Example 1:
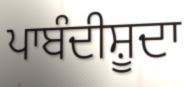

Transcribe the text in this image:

ਪਾਬੰਦੀਸ਼ੂਦਾ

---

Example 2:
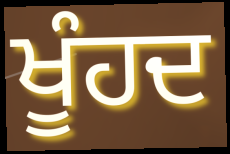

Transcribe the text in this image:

ਖੂੰਹਦ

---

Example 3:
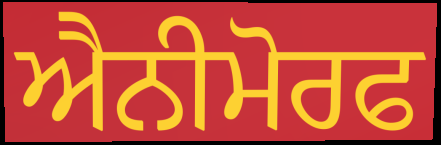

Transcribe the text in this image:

ਐਨੀਮੋਰਫ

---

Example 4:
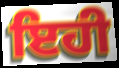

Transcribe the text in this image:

ਇਹੀ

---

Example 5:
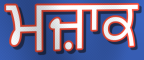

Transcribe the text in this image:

ਮਜ਼ਾਕ